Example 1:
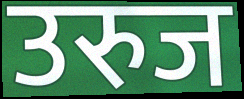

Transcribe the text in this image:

उरुज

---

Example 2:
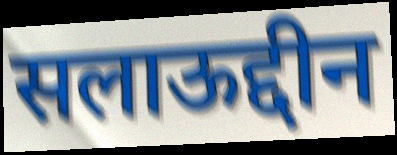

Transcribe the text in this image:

सलाऊद्दीन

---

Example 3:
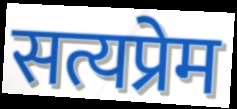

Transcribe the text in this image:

सत्यप्रेम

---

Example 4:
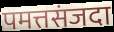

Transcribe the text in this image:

पमत्तसंजदा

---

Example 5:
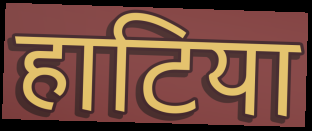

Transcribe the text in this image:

हाटिया